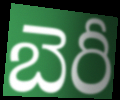
బెరీ